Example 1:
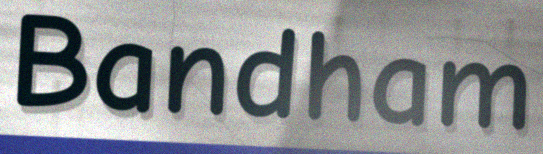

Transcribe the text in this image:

Bandham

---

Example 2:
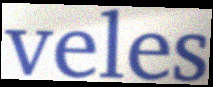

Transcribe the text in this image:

veles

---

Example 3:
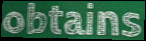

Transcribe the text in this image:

obtains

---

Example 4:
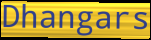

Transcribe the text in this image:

Dhangars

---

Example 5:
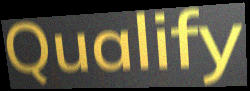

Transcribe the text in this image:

Qualify